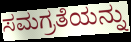
ಸಮಗ್ರತೆಯನ್ನು